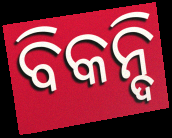
ବିକନ୍ଦି